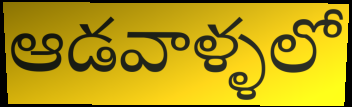
ఆడవాళ్ళలో